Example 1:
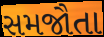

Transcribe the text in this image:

સમજૌતા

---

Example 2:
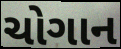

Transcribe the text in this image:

ચોગાન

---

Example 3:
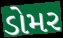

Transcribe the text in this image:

ડોમર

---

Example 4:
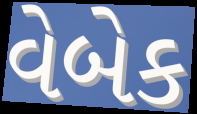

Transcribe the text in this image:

વેબેક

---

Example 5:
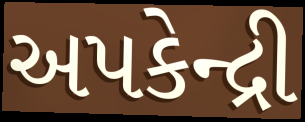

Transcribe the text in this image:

અપકેન્દ્રી